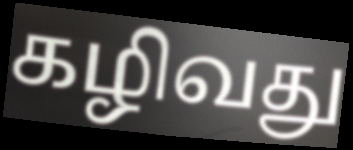
கழிவது